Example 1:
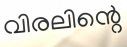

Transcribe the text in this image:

വിരലിന്റെ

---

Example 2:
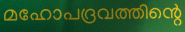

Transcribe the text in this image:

മഹോപദ്രവത്തിന്റെ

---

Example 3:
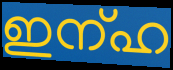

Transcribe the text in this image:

ഇന്ഹ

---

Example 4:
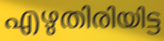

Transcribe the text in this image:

എഴുതിരിയിട്ട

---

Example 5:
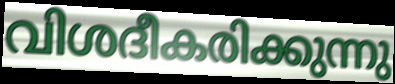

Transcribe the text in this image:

വിശദീകരിക്കുന്നു